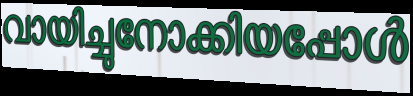
വായിച്ചുനോക്കിയപ്പോൾ